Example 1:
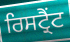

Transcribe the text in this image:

ਰਿਸਟ੍ਰੈਂਟ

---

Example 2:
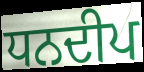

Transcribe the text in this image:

ਧਨਦੀਪ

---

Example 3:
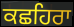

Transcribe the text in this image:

ਕਛਹਿਰਾ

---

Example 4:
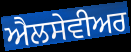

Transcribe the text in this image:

ਐਲਸੇਵੀਅਰ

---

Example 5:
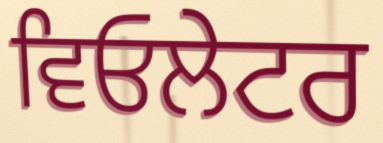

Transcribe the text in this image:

ਵਿਓਲੇਟਰ